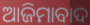
ଆଜିମାବାଦ